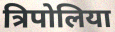
त्रिपोलिया